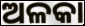
ଅଳକା